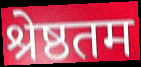
श्रेष्ठतम